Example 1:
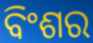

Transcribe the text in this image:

ବିଂଶର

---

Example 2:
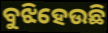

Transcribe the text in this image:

ବୁଝିହେଉଛି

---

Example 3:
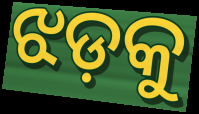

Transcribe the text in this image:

ଝଡ଼କୁ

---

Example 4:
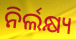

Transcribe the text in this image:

ନିର୍ଲକ୍ଷ୍ୟ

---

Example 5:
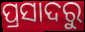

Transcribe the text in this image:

ପ୍ରସାଦରୁ